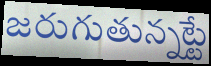
జరుగుతున్నట్టే